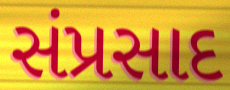
સંપ્રસાદ